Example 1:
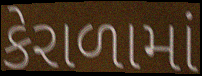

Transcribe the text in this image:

કેરાળામાં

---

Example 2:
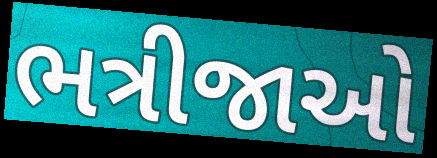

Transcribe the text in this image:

ભત્રીજાઓ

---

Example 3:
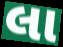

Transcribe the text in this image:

લા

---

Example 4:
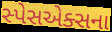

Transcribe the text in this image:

સ્પેસએક્સના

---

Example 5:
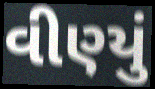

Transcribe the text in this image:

વીણ્યું